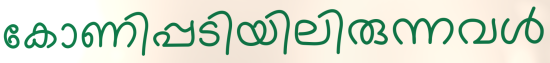
കോണിപ്പടിയിലിരുന്നവൾ